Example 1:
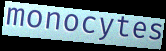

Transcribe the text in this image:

monocytes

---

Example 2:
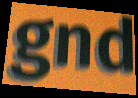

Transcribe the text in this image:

gnd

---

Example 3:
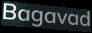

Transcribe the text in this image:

Bagavad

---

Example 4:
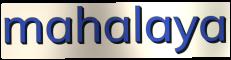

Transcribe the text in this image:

mahalaya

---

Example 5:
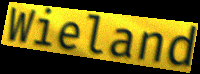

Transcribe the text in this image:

Wieland